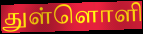
துள்ளொளி